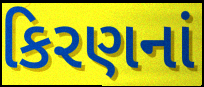
કિરણનાં